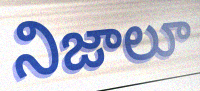
నిజాలూ